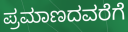
ಪ್ರಮಾಣದವರೆಗೆ